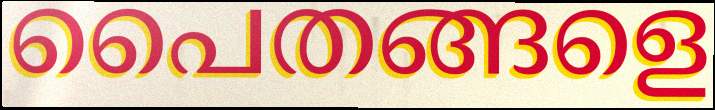
പൈതങ്ങളെ